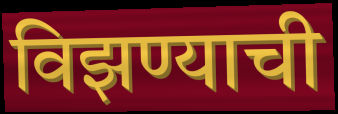
विझण्याची